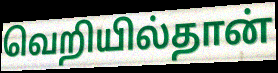
வெறியில்தான்